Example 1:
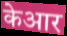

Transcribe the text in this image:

केआर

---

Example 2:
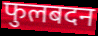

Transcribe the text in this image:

फुलबदन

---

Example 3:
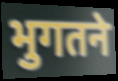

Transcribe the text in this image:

भुगतने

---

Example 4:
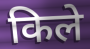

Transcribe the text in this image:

किले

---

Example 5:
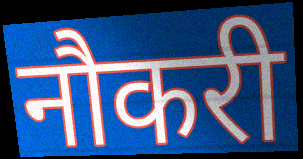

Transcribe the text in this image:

नौकरी